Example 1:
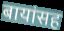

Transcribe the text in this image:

बायांसह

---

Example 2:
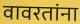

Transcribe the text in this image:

वावरतांना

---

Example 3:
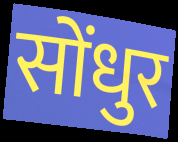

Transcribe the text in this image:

सोंधुर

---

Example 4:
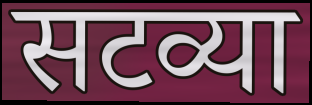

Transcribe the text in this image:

सटव्या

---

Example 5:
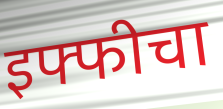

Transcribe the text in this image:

इफ्फीचा